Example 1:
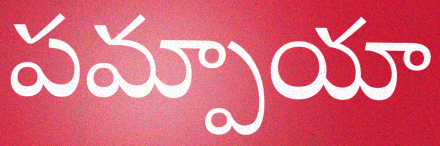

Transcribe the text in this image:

పమ్పాయా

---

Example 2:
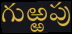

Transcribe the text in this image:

గుఱ్ఱపు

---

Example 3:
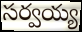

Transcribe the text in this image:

సర్వయ్య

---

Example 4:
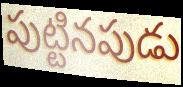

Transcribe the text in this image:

పుట్టినపుడు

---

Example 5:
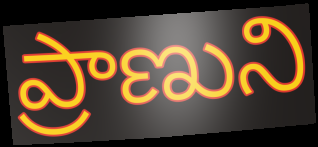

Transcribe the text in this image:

ప్రాణుని